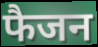
फैजन